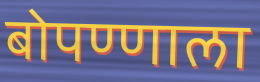
बोपण्णाला